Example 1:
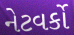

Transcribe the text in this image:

નેટવર્કો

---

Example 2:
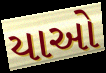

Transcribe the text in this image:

યાઓ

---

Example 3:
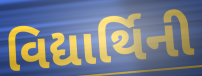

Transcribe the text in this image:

વિદ્યાર્થિની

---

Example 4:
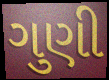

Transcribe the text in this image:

ગુણી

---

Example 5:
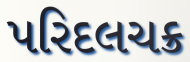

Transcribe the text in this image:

પરિદલચક્ર